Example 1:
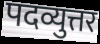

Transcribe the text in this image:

पदव्युत्तर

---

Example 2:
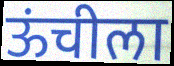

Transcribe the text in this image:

ऊंचीला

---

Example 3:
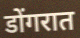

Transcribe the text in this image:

डोंगरात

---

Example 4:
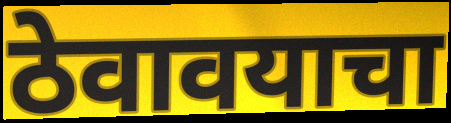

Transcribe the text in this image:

ठेवावयाचा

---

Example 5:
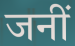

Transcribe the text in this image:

जनीं